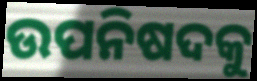
ଉପନିଷଦକୁ